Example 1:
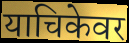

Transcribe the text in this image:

याचिकेवर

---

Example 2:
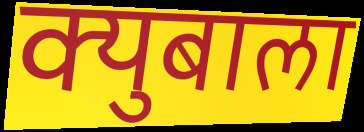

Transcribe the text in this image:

क्युबाला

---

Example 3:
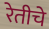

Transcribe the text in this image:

रेतीचे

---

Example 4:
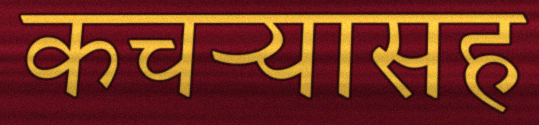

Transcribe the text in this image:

कचऱ्यासह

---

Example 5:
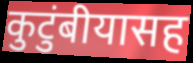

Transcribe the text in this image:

कुटुंबीयासह